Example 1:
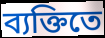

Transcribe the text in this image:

ব্যক্তিতে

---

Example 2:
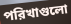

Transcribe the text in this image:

পরিখাগুলো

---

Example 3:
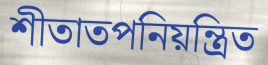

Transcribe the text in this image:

শীতাতপনিয়ন্ত্রিত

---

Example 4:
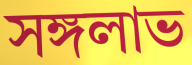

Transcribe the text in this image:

সঙ্গলাভ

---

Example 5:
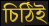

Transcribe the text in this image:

চিঠিই